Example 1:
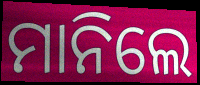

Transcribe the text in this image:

ମାନିଲେ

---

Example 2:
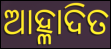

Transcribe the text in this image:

ଆହ୍ଳାଦିତ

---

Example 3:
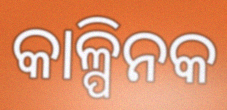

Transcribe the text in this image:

କାଳ୍ପିନକ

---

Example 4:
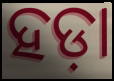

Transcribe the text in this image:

ହଡ଼ା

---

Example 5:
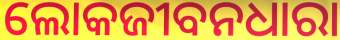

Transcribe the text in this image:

ଲୋକଜୀବନଧାରା